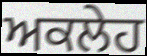
ਅਕਲੇਹ